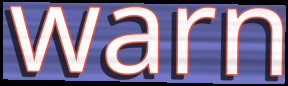
warn